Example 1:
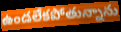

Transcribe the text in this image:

ఉండలేకపోతున్నాను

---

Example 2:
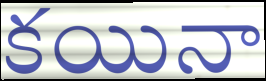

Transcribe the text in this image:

కయినా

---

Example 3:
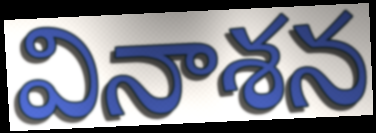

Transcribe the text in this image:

వినాశన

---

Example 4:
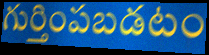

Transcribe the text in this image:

గుర్తింపబడటం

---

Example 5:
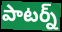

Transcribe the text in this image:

పాటర్న్